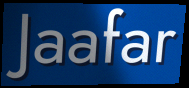
Jaafar